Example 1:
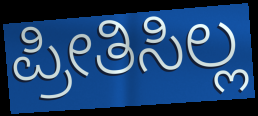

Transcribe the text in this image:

ಪ್ರೀತಿಸಿಲ್ಲ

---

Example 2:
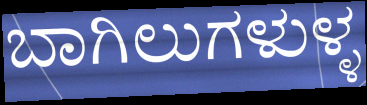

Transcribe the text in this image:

ಬಾಗಿಲುಗಳುಳ್ಳ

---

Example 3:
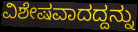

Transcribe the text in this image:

ವಿಶೇಷವಾದದ್ದನ್ನು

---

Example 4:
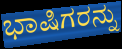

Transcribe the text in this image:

ಭಾಷಿಗರನ್ನು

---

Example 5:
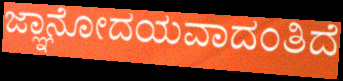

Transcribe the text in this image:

ಜ್ಞಾನೋದಯವಾದಂತಿದೆ